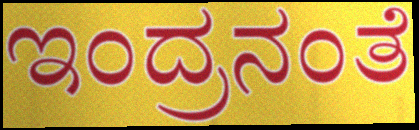
ಇಂದ್ರನಂತೆ